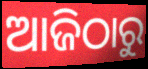
ଆଜିଠାରୁ